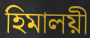
হিমালয়ী